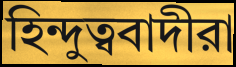
হিন্দুত্ববাদীরা